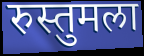
रुस्तुमला